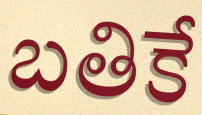
బతికే